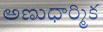
అణుధార్మిక